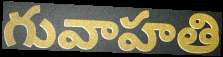
గువాహతి